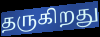
தருகிறது